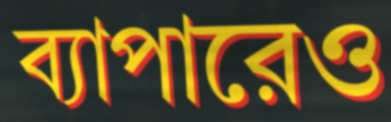
ব্যাপারেও